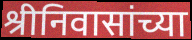
श्रीनिवासांच्या